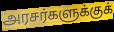
அரசர்களுக்குக்